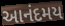
આનંદમય